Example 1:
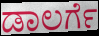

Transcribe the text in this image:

ಡಾಲರ್ಗೆ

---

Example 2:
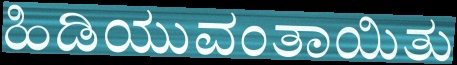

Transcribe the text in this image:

ಹಿಡಿಯುವಂತಾಯಿತು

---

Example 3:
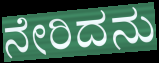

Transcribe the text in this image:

ನೇರಿದನು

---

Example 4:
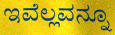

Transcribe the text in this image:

ಇವೆಲ್ಲವನ್ನೂ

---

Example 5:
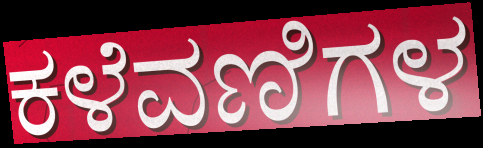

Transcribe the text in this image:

ಕಳೆವಣಿಗಳ